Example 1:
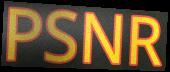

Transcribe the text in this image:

PSNR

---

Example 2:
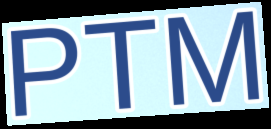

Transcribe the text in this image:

PTM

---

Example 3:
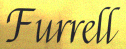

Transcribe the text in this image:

Furrell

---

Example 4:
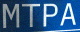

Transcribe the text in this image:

MTPA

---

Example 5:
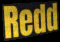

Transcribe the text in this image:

Redd